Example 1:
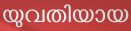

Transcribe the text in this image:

യുവതിയായ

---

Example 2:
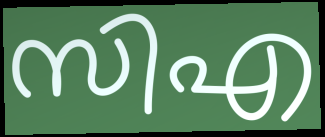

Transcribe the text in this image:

സിഎ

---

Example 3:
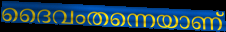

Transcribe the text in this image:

ദൈവംതന്നെയാണ്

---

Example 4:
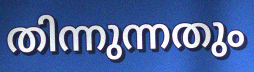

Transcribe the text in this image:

തിന്നുന്നതും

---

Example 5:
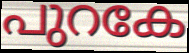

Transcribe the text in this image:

പുറകേ